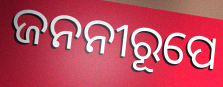
ଜନନୀରୂପେ